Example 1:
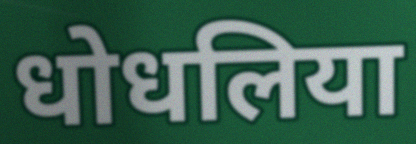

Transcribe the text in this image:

धोधलिया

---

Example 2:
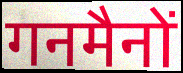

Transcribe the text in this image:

गनमैनों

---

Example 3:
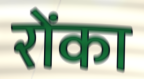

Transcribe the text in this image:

रोंका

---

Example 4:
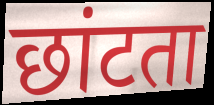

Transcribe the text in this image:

छांटता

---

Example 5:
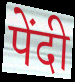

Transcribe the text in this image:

पेंदी